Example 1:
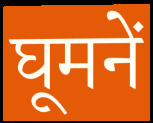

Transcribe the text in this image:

घूमनें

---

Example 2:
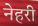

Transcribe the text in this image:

नेहरी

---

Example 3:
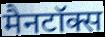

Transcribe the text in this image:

मैनटॉक्स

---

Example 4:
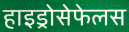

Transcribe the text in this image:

हाइड्रोसेफेलस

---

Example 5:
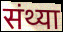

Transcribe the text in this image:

संथ्या